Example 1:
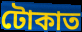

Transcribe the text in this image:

টোকাত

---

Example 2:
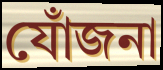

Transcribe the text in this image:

যোঁজনা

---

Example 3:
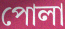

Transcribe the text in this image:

পোলা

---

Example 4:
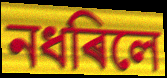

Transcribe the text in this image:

নধৰিলে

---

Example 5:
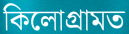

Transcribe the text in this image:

কিলোগ্ৰামত